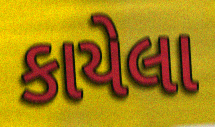
કાયેલા